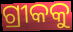
ଗ୍ରୀକକୁ